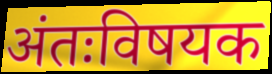
अंतःविषयक